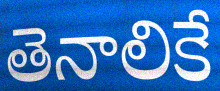
తెనాలికే